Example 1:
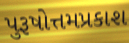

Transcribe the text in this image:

પુરૂષોત્તમપ્રકાશ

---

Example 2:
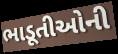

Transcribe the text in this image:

ભાડૂતીઓની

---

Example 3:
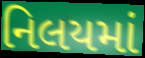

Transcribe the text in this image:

નિલયમાં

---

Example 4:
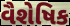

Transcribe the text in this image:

વૈશેષિક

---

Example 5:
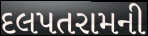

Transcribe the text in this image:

દલપતરામની